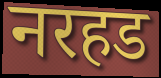
नरहड